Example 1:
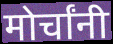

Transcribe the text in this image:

मोर्चांनी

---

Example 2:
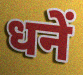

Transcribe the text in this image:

धनें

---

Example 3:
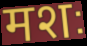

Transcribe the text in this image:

मशः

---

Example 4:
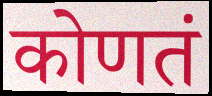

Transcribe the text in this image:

कोणतं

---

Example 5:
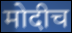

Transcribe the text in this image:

मोदीच